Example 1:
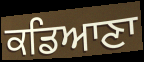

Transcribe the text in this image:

ਕਡਿਆਣਾ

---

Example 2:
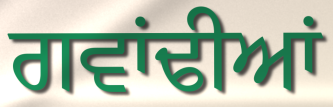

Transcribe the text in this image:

ਗਵਾਂਢੀਆਂ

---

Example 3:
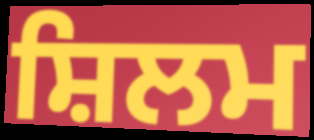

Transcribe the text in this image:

ਸ਼ਿਲਮ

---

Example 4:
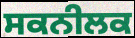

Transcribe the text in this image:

ਸਕਨੀਲਕ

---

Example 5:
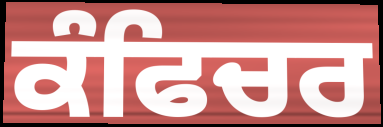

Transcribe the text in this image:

ਕੰਫਿਚਰ